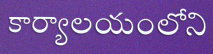
కార్యాలయంలోని